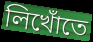
লিখোঁতে